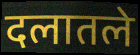
दलातले